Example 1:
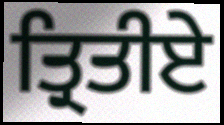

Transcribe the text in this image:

ਤ੍ਰਿਤੀਏ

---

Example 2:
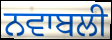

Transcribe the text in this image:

ਨਵਾਬਲੀ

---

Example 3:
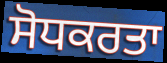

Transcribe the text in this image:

ਸੋਧਕਰਤਾ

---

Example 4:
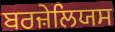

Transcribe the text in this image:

ਬਰਜ਼ੇਲਿਯਸ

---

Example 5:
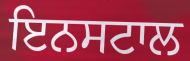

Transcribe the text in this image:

ਇਨਸਟਾਲ